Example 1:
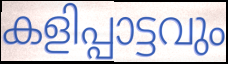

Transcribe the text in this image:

കളിപ്പാട്ടവും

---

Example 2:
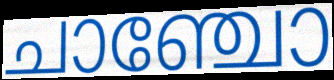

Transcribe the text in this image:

ചാഞ്ചോ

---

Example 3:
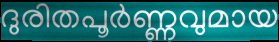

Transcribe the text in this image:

ദുരിതപൂർണ്ണവുമായ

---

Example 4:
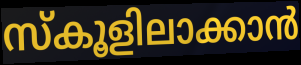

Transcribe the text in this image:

സ്കൂളിലാക്കാൻ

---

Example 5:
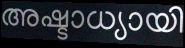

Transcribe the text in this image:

അഷ്ടാധ്യായി